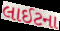
લાઈટના